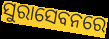
ସୁରାସେବନରେ